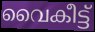
വൈകീട്ട്